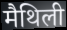
मैथिली